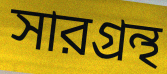
সারগ্রন্থ